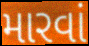
મારવાં